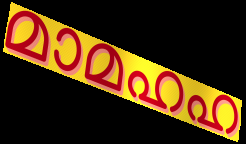
മാമഹഹ